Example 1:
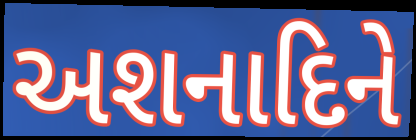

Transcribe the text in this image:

અશનાદિને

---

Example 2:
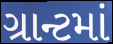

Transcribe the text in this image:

ગ્રાન્ટમાં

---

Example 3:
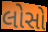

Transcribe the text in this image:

લોસો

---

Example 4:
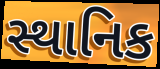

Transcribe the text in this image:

સ્થાનિક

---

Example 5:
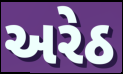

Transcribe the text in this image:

અરેઠ